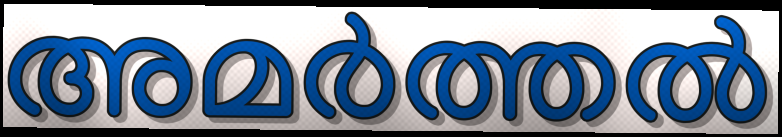
അമർത്തൽ